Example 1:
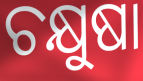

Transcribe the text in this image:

ଚକ୍ଷୁଷା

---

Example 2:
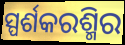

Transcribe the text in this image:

ସ୍ପର୍ଶକରଶ୍ମିର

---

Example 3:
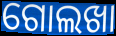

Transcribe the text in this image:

ଗୋଲଖା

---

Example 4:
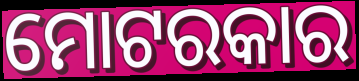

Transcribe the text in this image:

ମୋଟରକାର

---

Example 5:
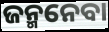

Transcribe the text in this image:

ଜନ୍ମନେବା